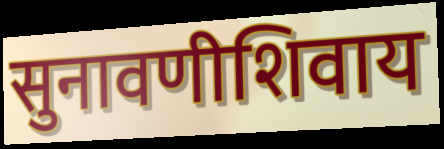
सुनावणीशिवाय